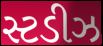
સ્ટડીઝ